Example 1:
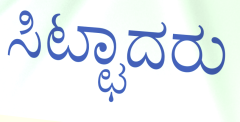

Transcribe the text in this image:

ಸಿಟ್ಟಾದರು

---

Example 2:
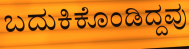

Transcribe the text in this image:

ಬದುಕಿಕೊಂಡಿದ್ದವು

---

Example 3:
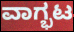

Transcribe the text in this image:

ವಾಗ್ಭಟ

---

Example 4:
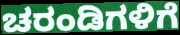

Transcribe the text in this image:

ಚರಂಡಿಗಳಿಗೆ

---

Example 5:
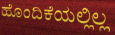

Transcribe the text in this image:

ಹೊಂದಿಕೆಯಲ್ಲಿಲ್ಲ